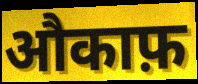
औकाफ़